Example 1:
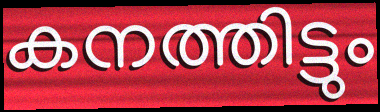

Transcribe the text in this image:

കനത്തിട്ടും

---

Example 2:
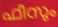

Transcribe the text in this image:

ഫീസും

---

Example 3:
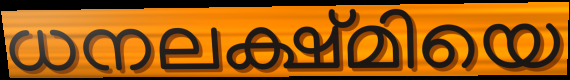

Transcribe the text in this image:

ധനലക്ഷ്മിയെ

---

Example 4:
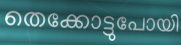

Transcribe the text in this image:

തെക്കോട്ടുപോയി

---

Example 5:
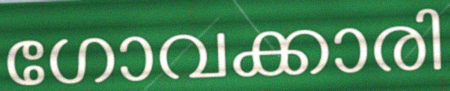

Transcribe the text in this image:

ഗോവക്കാരി